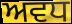
ਅਵਧ